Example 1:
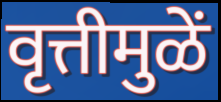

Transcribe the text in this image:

वृत्तीमुळें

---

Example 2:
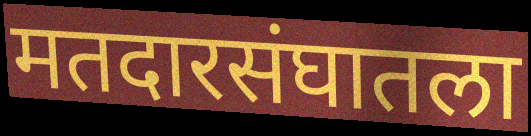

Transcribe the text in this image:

मतदारसंघातला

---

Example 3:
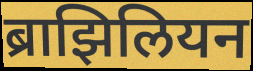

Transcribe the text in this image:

ब्राझिलियन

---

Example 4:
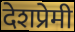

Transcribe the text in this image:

देशप्रेमी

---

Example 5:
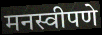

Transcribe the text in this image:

मनस्वीपणे